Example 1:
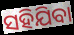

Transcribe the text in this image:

ସହିଯିବା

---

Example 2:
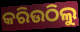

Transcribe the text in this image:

କରିଉଠିଲୁ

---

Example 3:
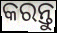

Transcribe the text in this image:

କରନ୍ତୁ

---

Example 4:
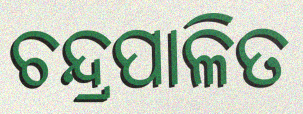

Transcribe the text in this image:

ଚନ୍ଦ୍ରପାଳିତ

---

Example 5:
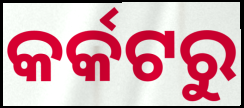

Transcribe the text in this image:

କର୍କଟରୁ